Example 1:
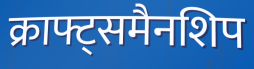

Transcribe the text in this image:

क्राफ्ट्समैनशिप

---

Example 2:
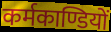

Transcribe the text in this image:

कर्मकाण्डियों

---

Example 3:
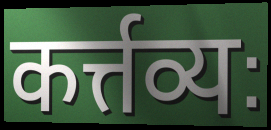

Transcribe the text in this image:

कर्त्तव्यः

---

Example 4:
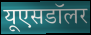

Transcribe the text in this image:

यूएसडॉलर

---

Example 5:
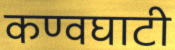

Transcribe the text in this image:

कण्वघाटी